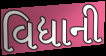
વિદ્યાની